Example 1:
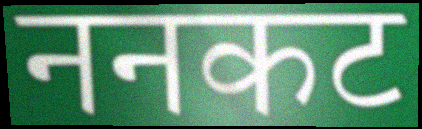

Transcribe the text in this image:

ननकट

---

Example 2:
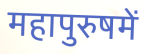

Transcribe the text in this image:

महापुरुषमें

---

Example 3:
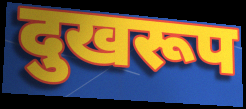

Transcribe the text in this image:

दुखरूप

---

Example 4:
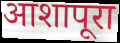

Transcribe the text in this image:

आशापूरा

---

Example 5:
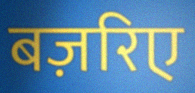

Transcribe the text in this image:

बज़रिए